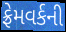
ફ્રેમવર્કની